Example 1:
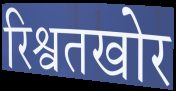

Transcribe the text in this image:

रिश्वतखोर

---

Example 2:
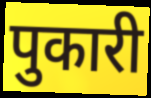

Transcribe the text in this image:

पुकारी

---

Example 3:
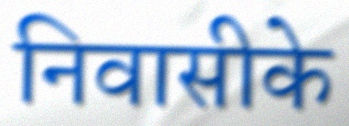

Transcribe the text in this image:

निवासीके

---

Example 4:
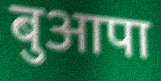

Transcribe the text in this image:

बुआपा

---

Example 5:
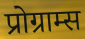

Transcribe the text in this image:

प्रोग्राम्स